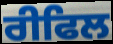
ਰੀਫਿਲ